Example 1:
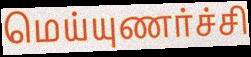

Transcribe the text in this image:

மெய்யுணர்ச்சி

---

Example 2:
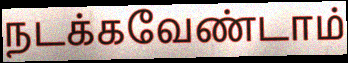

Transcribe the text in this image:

நடக்கவேண்டாம்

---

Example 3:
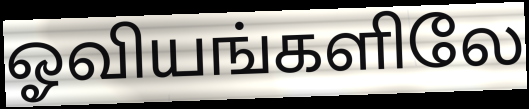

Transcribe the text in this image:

ஓவியங்களிலே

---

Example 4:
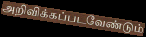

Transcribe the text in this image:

அறிவிக்கப்படவேண்டும்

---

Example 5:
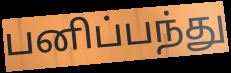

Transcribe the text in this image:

பனிப்பந்து